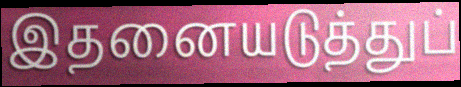
இதனையடுத்துப்